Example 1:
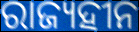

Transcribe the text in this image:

ରାଜ୍ୟହୀନ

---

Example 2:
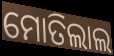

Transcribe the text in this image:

ମୋତିଲାଲ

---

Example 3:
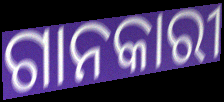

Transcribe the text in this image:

ଗାନକାରୀ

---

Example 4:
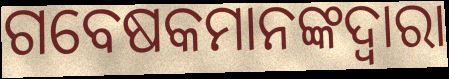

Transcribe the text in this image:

ଗବେଷକମାନଙ୍କଦ୍ୱାରା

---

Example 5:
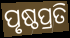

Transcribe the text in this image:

ପୃଷ୍ଠପ୍ରତି